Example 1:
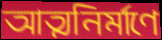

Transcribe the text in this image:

আত্মনির্মাণে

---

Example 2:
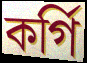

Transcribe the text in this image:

কর্গি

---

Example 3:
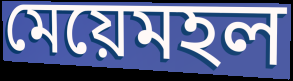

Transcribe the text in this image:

মেয়েমহল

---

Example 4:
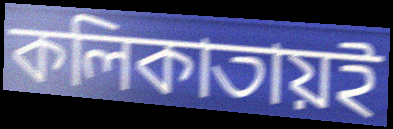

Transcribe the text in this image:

কলিকাতায়ই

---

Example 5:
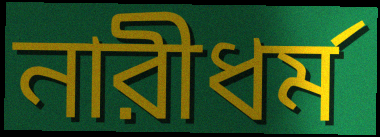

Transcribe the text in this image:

নারীধর্ম